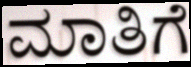
ಮಾತಿಗೆ